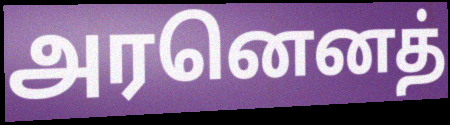
அரனெனத்